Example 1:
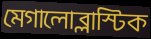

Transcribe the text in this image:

মেগালোব্লাস্টিক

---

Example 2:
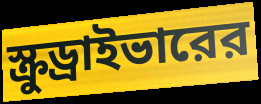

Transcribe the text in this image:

স্ক্রুড্রাইভারের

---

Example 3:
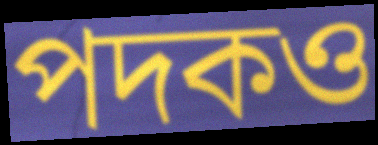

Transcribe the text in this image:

পদকও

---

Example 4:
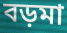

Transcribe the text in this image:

বড়মা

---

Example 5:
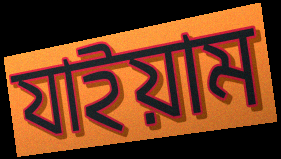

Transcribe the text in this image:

যাইয়াম